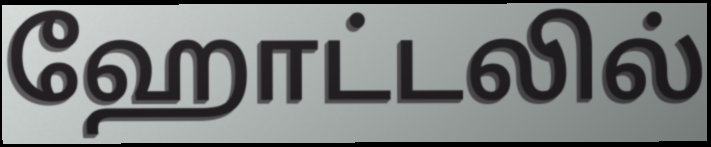
ஹோட்டலில்